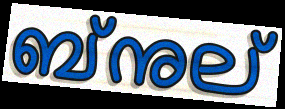
ബ്നുല്